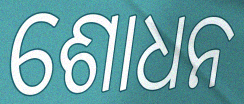
ଶୋଧନ